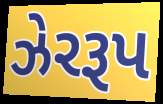
ઝેરરૂપ